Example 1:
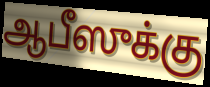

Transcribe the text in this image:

ஆபீஸுக்கு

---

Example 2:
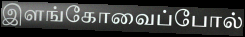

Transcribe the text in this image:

இளங்கோவைப்போல்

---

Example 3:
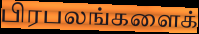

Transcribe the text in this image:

பிரபலங்களைக்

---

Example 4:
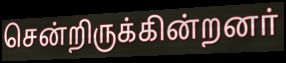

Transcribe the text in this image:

சென்றிருக்கின்றனர்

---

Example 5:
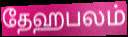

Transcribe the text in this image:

தேஹபலம்